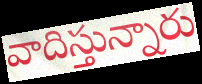
వాదిస్తున్నారు